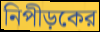
নিপীড়কের